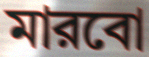
মারবো